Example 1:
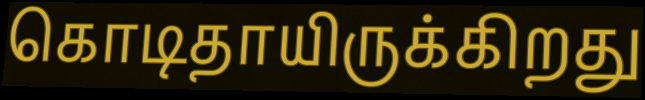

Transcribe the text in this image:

கொடிதாயிருக்கிறது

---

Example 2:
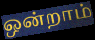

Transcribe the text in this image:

ஒன்றாம்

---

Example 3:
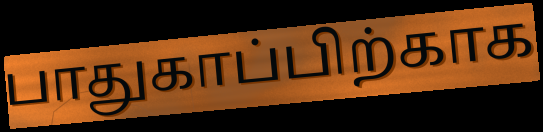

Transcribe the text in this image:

பாதுகாப்பிற்காக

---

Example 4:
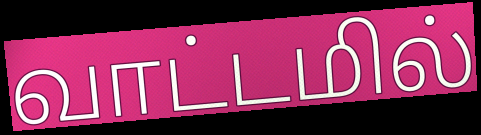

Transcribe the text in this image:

வாட்டமில்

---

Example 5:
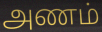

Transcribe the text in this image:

அணம்